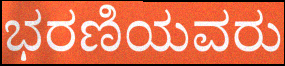
ಭರಣಿಯವರು